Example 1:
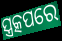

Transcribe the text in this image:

ସ୍ତ୍ରତ୍କପରେ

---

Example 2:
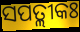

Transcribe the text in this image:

ସପତ୍ଲୀକଃ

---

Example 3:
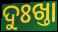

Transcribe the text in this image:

ଦୁଃଖ୍ତା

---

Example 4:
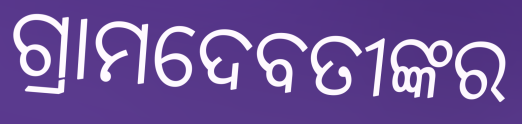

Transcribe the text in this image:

ଗ୍ରାମଦେବତୀଙ୍କର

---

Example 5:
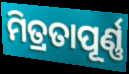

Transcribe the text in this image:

ମିତ୍ରତାପୂର୍ଣ୍ଣ